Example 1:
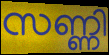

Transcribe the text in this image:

സണ്ണി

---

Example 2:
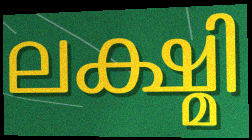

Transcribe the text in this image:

ലക്ഷ്മി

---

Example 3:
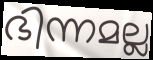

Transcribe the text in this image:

ഭിന്നമല്ല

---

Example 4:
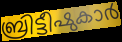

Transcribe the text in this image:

ബ്രിട്ടീഷുകാർ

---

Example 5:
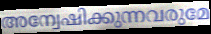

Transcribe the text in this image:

അന്വേഷിക്കുന്നവരുമേ